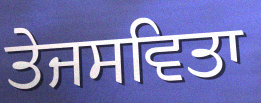
ਤੇਜਸਵਿਤਾ